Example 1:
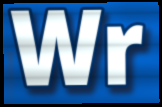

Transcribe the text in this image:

Wr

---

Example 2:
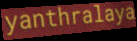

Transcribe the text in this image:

yanthralaya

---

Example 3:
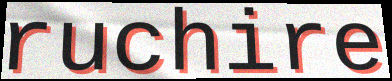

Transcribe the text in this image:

ruchire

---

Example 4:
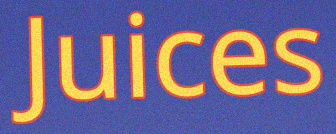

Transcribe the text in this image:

Juices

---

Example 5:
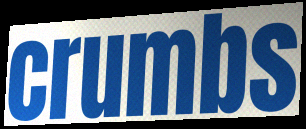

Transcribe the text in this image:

crumbs